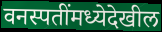
वनस्पतींमध्येदेखील